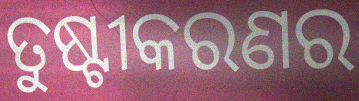
ତୁଷ୍ଟୀକରଣର